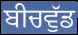
ਬੀਚਵੁੱਡ